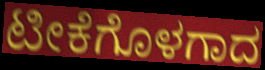
ಟೀಕೆಗೊಳಗಾದ